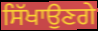
ਸਿੱਖਾਉਣਗੇ